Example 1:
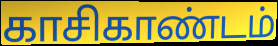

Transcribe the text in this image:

காசிகாண்டம்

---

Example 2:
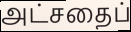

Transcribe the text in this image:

அட்சதைப்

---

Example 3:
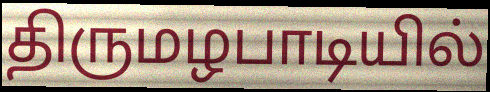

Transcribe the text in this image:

திருமழபாடியில்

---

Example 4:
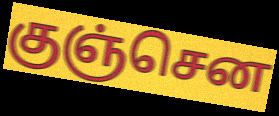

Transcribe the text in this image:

குஞ்சென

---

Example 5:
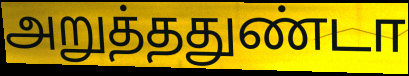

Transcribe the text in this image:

அறுத்ததுண்டா